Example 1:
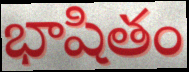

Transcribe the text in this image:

భాషితం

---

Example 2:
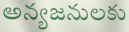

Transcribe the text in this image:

అన్యజనులకు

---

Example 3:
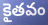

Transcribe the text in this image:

కైతవం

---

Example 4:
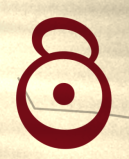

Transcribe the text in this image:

ఠి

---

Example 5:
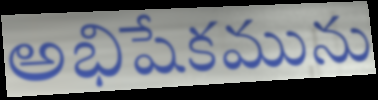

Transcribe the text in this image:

అభిషేకమును